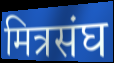
मित्रसंघ